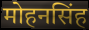
मोहनसिंह